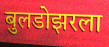
बुलडोझरला